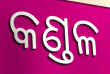
କଣ୍ଡଳ